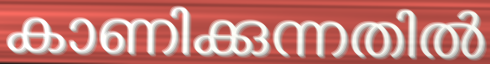
കാണിക്കുന്നതിൽ